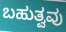
ಬಹುತ್ವವು